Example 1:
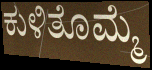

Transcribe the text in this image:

ಕುಳಿತೊಮ್ಮೆ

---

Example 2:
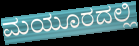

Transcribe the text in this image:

ಮಯೂರದಲ್ಲಿ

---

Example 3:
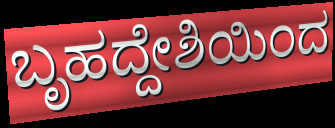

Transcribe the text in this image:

ಬೃಹದ್ದೇಶಿಯಿಂದ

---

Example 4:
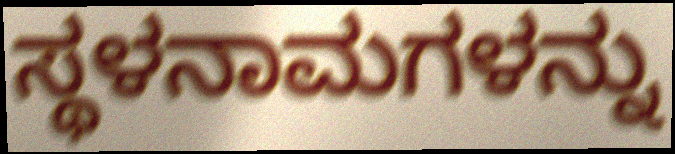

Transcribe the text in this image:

ಸ್ಥಳನಾಮಗಳನ್ನು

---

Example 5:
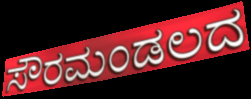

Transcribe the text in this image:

ಸೌರಮಂಡಲದ